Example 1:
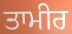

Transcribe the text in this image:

ਤਾਮੀਰ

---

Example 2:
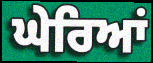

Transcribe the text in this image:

ਘੇਰਿਆਂ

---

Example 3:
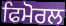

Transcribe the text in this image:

ਫਿਮੋਰਲ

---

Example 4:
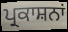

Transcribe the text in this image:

ਪ੍ਰਕਾਸ਼ਨਾਂ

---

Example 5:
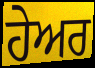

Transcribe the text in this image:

ਹੇਅਰ